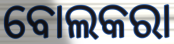
ବୋଲକରା